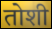
तोशी